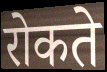
रोकते